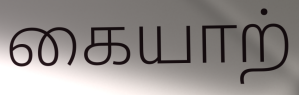
கையாற்